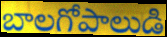
బాలగోపాలుడి